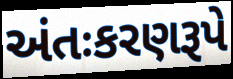
અંતઃકરણરૂપે